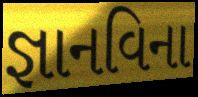
જ્ઞાનવિના